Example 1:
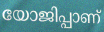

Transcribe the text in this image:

യോജിപ്പാണ്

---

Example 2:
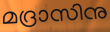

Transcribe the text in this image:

മദ്രാസിനു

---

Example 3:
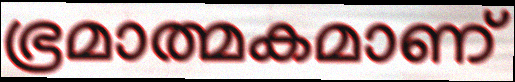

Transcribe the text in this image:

ഭ്രമാത്മകമാണ്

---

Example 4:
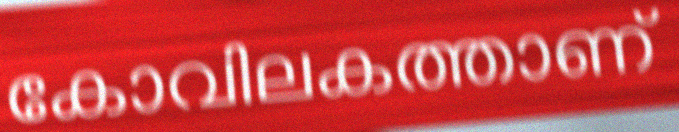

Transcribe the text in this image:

കോവിലകത്താണ്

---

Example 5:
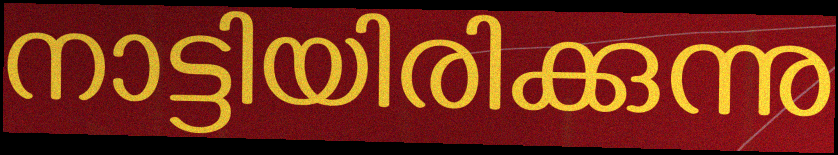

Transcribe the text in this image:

നാട്ടിയിരിക്കുന്നു